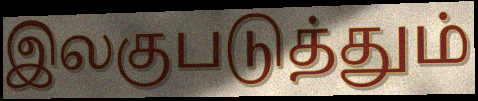
இலகுபடுத்தும்